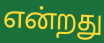
என்றது